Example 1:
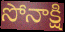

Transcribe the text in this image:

సోనాక్షి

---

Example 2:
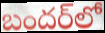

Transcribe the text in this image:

బందర్‌లో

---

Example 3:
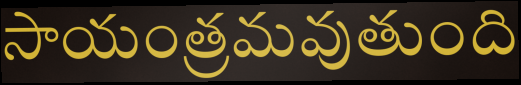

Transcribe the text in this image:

సాయంత్రమవుతుంది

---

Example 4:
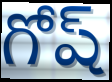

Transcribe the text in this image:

గోష్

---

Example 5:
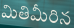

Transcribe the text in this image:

మితిమీరిన